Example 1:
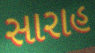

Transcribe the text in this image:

સારાહ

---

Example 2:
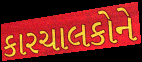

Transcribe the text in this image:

કારચાલકોને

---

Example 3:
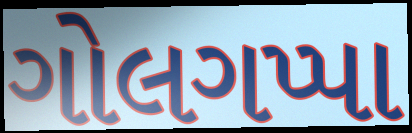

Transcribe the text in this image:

ગોલગપ્પા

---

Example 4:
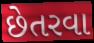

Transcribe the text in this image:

છેતરવા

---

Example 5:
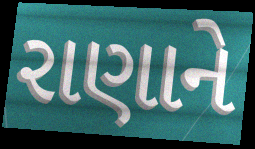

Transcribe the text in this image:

રાણાને